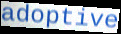
adoptive